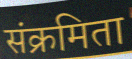
संक्रमिता